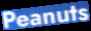
Peanuts